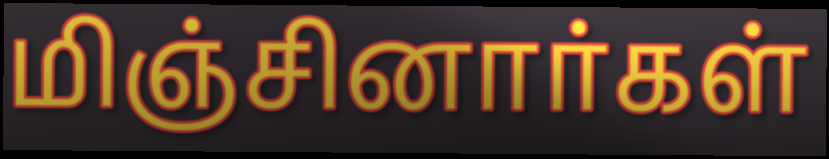
மிஞ்சினார்கள்